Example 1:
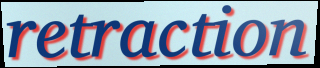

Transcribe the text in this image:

retraction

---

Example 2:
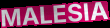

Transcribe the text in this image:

MALESIA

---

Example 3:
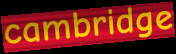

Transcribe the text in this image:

cambridge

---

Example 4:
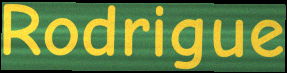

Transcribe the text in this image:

Rodrigue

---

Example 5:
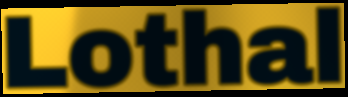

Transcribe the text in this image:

Lothal